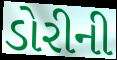
ડોરીની